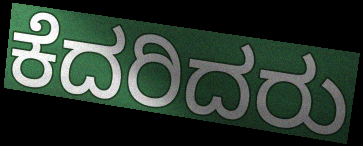
ಕೆದರಿದರು